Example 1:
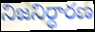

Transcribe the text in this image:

నిజనిర్ధారణ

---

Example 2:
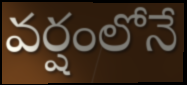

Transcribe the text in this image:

వర్షంలోనే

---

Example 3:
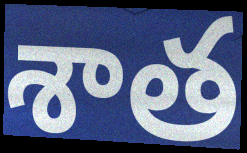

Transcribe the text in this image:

శాత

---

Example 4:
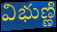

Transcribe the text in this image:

విభుణ్ణి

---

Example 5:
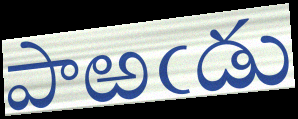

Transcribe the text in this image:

పాఱఁడు